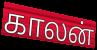
காலன்